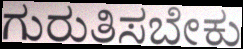
ಗುರುತಿಸಬೇಕು